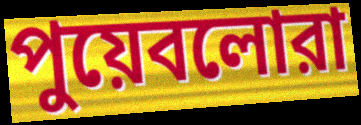
পুয়েবলোরা